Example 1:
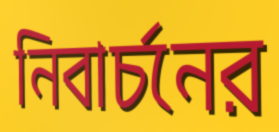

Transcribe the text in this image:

নিবার্চনের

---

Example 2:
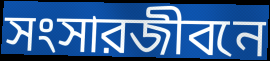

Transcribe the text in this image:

সংসারজীবনে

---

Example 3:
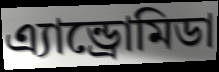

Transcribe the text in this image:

এ্যান্ড্রোমিডা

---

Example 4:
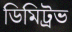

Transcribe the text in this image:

ডিমিট্রভ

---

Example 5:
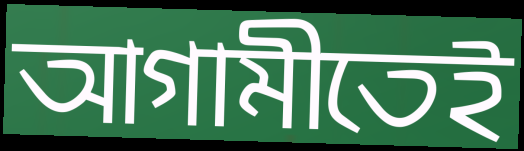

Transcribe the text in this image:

আগামীতেই